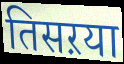
तिसऱया